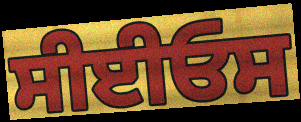
ਸੀਈਓਸ